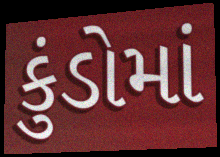
કુંડોમાં